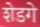
शेडगे